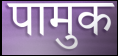
पामुक